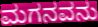
ಮಗನವನು